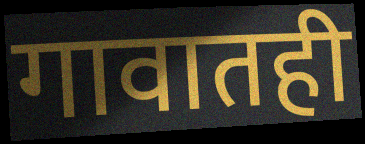
गावातही